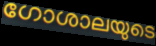
ഗോശാലയുടെ